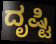
ದೃಷ್ಟಿ